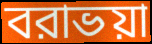
বরাভয়া